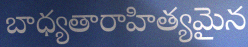
బాధ్యతారాహిత్యమైన